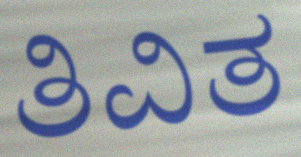
ತಿವಿತ